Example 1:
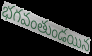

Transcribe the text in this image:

భగవంతుండయిన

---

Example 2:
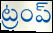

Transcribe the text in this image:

ట్రంప్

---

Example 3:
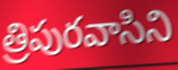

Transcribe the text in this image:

త్రిపురవాసిని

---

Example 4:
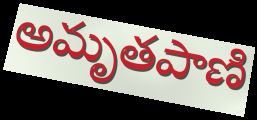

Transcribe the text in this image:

అమృతపాణి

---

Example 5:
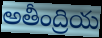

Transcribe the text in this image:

అతీంద్రియ